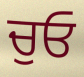
ਚੁਓ